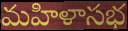
మహిళాసభ